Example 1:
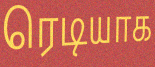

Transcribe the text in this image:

ரெடியாக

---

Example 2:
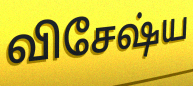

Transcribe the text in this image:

விசேஷ்ய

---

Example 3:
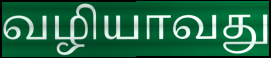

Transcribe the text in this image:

வழியாவது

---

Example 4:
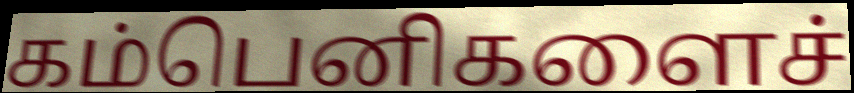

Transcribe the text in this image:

கம்பெனிகளைச்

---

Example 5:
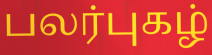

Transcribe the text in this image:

பலர்புகழ்